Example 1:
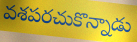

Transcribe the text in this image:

వశపరచుకొన్నాడు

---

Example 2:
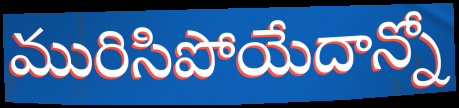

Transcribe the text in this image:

మురిసిపోయేదాన్నో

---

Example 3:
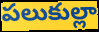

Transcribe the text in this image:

పలుకుల్లా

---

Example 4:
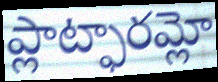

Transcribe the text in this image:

ప్లాట్ఫారమ్లో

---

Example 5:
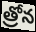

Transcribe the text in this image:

త్రోన